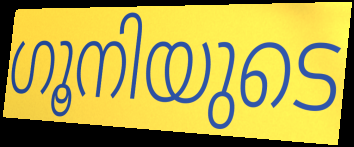
ഗൂനിയുടെ